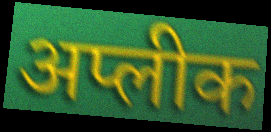
अप्लीक